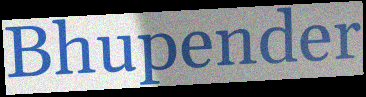
Bhupender